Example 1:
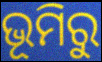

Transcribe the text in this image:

ଭୂମିରୁ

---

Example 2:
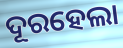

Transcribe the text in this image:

ଦୂରହେଲା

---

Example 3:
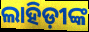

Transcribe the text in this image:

ଲାହିଡ଼ୀଙ୍କ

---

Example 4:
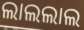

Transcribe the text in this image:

ଲାଲଲାଲ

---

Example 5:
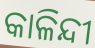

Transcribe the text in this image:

କାଳିନ୍ଦୀ